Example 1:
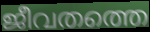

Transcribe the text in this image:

ജീവതത്തെ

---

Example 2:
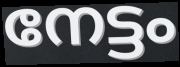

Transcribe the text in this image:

നേട്ടം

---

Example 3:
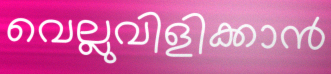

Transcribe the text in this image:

വെല്ലുവിളിക്കാൻ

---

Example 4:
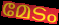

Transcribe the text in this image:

മേടം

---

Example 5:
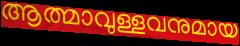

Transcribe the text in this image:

ആത്മാവുള്ളവനുമായ